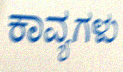
ಕಾವ್ಯಗಳು